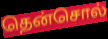
தென்சொல்